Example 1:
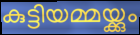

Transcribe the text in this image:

കുട്ടിയമ്മയ്ക്കും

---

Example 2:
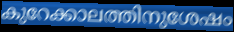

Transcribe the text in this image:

കുറേക്കാലത്തിനുശേഷം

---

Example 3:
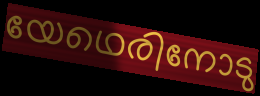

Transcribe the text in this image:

യേഥെരിനോടു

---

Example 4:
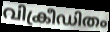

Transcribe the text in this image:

വിക്രീഡിതം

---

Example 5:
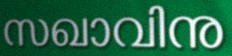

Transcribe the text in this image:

സഖാവിനു